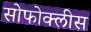
सोफोक्लीस